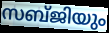
സബ്ജിയും